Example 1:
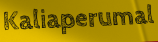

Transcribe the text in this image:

Kaliaperumal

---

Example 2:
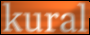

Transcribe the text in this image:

kural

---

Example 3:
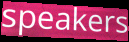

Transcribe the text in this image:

speakers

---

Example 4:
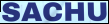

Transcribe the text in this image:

SACHU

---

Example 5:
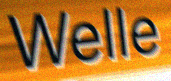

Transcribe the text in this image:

Welle